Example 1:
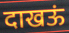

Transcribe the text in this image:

दाखऊं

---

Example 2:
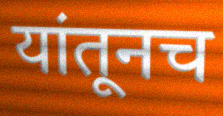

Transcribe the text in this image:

यांतूनच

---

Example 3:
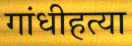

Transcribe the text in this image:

गांधीहत्या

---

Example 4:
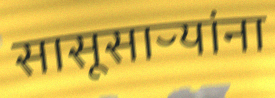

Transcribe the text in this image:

सासूसाऱ्यांना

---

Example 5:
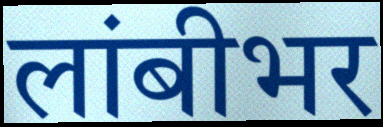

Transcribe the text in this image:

लांबीभर